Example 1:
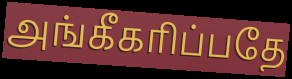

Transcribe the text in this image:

அங்கீகரிப்பதே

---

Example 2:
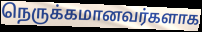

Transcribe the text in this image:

நெருக்கமானவர்களாக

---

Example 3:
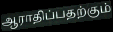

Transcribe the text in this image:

ஆராதிப்பதற்கும்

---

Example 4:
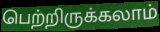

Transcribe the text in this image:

பெற்றிருக்கலாம்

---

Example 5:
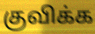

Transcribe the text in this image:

குவிக்க